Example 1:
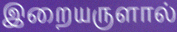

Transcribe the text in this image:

இறையருளால்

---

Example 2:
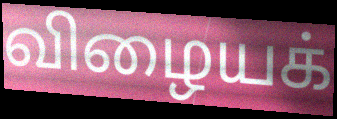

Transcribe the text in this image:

விழையக்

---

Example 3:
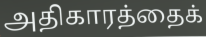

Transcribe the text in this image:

அதிகாரத்தைக்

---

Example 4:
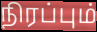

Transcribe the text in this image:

நிரப்பும்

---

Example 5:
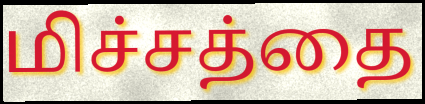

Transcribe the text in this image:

மிச்சத்தை